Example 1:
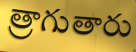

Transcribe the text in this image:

త్రాగుతారు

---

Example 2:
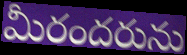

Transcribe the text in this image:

మీరందరును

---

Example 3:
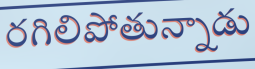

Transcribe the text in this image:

రగిలిపోతున్నాడు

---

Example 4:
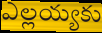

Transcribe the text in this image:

ఎల్లయ్యకు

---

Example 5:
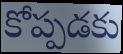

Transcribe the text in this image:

కోప్పడకు